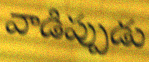
వాడిప్పుడు